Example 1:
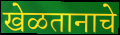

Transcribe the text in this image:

खेळतानाचे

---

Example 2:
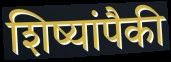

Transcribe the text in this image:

शिष्यांपैकी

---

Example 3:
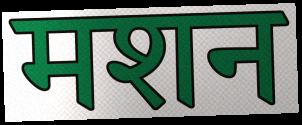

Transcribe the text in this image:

मशन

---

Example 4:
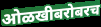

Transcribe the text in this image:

ओळखीबरोबरच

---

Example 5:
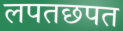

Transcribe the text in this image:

लपतछपत